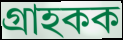
গ্ৰাহকক